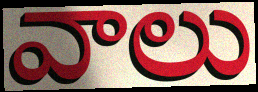
వాలు